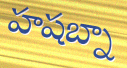
హషబ్నా